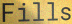
Fills